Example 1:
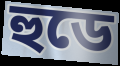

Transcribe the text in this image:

হুডে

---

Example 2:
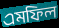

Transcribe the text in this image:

এমফিল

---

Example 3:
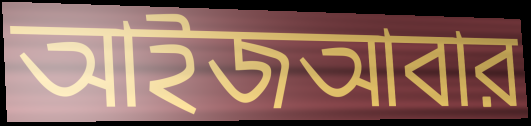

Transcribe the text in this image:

আইজআবার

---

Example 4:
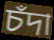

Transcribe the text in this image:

চঁদা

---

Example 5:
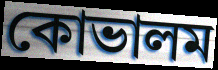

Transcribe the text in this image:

কোভালম